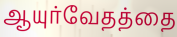
ஆயுர்வேதத்தை